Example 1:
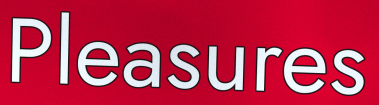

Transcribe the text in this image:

Pleasures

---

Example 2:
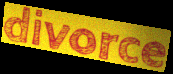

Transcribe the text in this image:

divorce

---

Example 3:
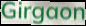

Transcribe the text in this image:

Girgaon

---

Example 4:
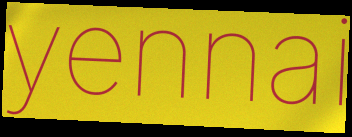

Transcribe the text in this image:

yennai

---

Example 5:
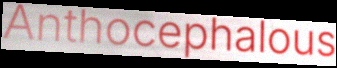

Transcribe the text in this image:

Anthocephalous